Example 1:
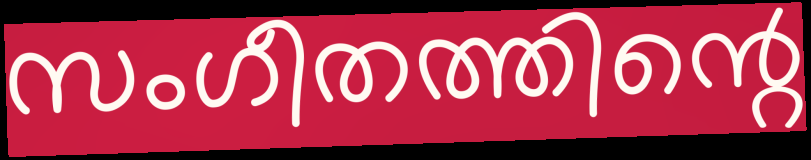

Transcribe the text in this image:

സംഗീതത്തിന്റെ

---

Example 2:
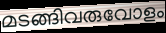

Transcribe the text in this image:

മടങ്ങിവരുവോളം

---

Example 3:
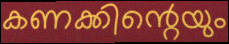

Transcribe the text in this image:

കണക്കിന്റെയും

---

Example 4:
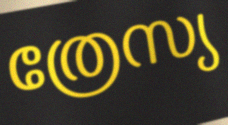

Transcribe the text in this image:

ത്രേസ്യ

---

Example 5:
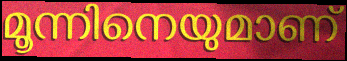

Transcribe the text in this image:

മൂന്നിനെയുമാണ്